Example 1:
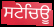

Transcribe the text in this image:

ਸਟੇਚਿਊ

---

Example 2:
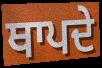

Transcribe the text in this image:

ਥਾਪਦੇ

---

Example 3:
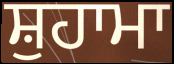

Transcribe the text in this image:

ਸ਼ੁਹਾਮਾ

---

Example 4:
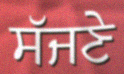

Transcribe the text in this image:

ਸੱਜਣੇ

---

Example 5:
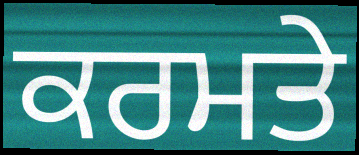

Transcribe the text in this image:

ਕਰਮਤੇ